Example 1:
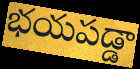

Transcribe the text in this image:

భయపడ్డా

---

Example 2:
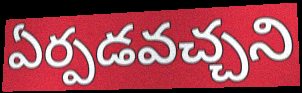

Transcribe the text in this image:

ఏర్పడవచ్చని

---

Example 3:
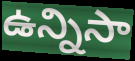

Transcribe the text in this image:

ఉన్నిసా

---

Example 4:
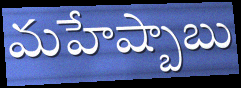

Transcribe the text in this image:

మహేష్బాబు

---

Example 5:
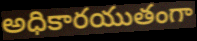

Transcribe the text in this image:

అధికారయుతంగా